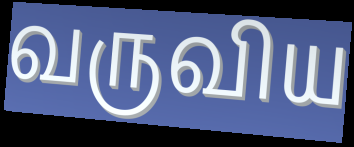
வருவிய